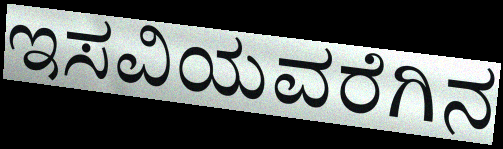
ಇಸವಿಯವರೆಗಿನ